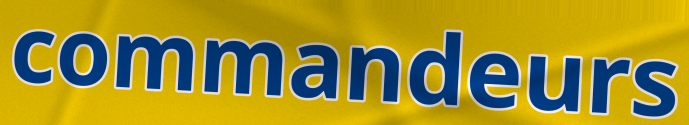
commandeurs